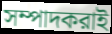
সম্পাদকরাই